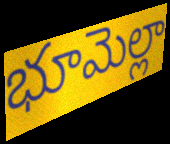
భూమెల్లా